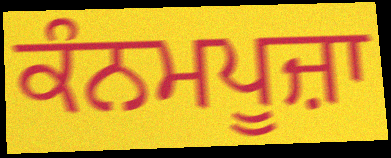
ਕੰਨਮਪੂਜ਼ਾ